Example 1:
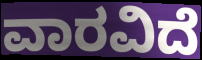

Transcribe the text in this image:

ವಾರವಿದೆ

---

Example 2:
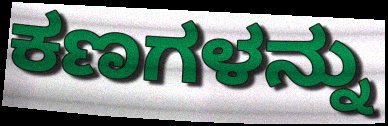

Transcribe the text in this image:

ಕಣಗಳನ್ನು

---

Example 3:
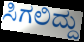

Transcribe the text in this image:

ಸಿಗಲಿದ್ದು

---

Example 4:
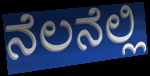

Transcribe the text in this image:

ನೆಲನೆಲ್ಲಿ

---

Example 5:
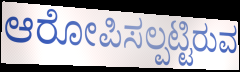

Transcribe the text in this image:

ಆರೋಪಿಸಲ್ಪಟ್ಟಿರುವ